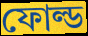
ফোল্ড